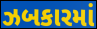
ઝબકારમાં